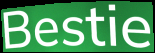
Bestie